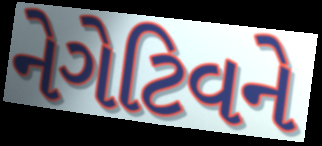
નેગેટિવને